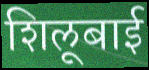
शिलूबाई